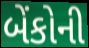
બેંકોની